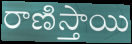
రాణిస్తాయి